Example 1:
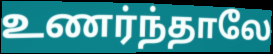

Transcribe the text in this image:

உணர்ந்தாலே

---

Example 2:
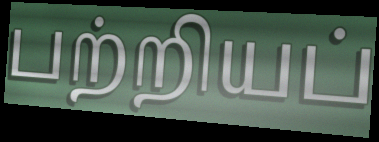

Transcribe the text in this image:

பற்றியப்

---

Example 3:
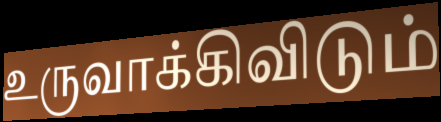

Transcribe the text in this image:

உருவாக்கிவிடும்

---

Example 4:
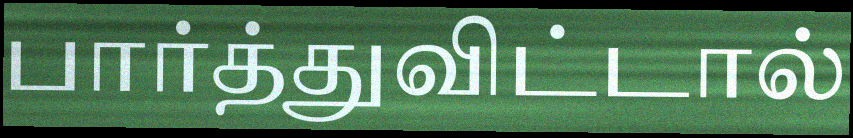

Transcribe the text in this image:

பார்த்துவிட்டால்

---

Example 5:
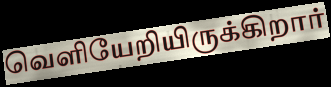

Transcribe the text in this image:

வெளியேறியிருக்கிறார்